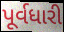
પૂર્વધારી